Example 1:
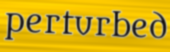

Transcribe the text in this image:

perturbed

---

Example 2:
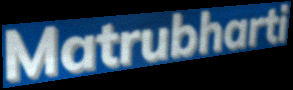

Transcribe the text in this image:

Matrubharti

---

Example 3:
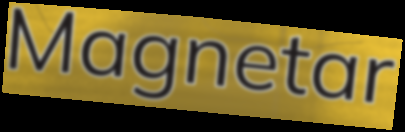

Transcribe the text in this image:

Magnetar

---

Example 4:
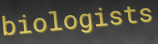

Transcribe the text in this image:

biologists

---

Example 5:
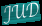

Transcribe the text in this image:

JUD